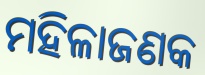
ମହିଳାଜଣକ